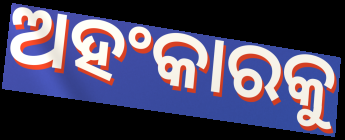
ଅହଂକାରକୁ